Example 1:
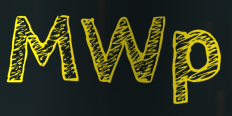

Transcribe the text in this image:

MWp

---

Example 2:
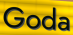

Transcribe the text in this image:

Goda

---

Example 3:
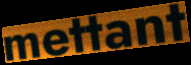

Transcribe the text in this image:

mettant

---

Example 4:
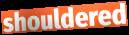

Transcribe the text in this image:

shouldered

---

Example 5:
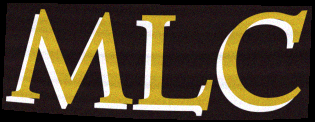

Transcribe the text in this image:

MLC